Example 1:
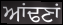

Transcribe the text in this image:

ਆਂਢਣਾਂ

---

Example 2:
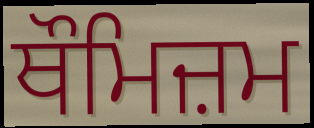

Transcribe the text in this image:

ਥੌਮਿਜ਼ਮ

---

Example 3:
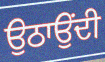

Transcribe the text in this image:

ਉਠਾਉਂਦੀ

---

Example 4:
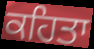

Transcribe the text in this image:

ਕਹਿਤਾ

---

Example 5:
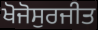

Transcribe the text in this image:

ਖੋਜੋਸੁਰਜੀਤ